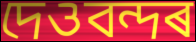
দেওবন্দৰ